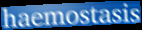
haemostasis